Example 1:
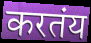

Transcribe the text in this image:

करतंय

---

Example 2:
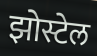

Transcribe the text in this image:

झोस्टेल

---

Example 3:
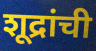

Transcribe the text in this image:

शूद्रांची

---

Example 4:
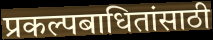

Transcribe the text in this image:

प्रकल्पबाधितांसाठी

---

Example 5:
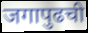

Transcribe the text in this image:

जगापुढची